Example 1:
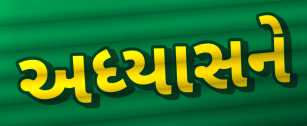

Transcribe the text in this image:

અધ્યાસને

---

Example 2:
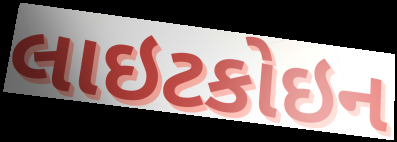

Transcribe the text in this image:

લાઇટકોઇન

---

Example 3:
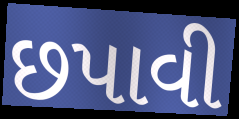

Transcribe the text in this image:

છપાવી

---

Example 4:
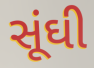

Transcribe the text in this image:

સૂંઘી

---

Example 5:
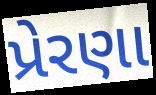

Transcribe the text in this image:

પ્રેરણા